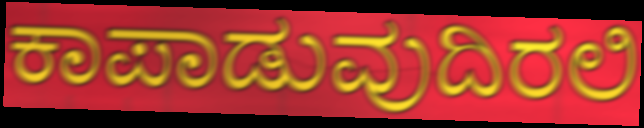
ಕಾಪಾಡುವುದಿರಲಿ